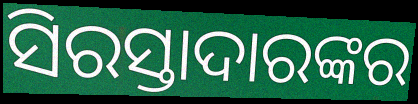
ସିରସ୍ତାଦାରଙ୍କର